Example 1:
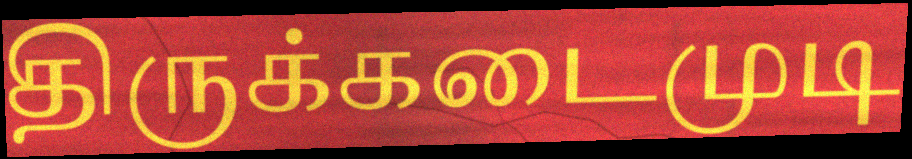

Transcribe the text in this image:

திருக்கடைமுடி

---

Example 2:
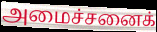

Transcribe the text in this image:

அமைச்சனைக்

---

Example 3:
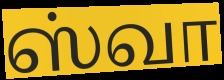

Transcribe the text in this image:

ஸ்வா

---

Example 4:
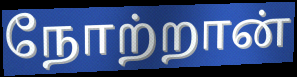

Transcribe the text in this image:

நோற்றான்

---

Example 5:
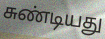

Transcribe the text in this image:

சுண்டியது